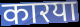
कारया